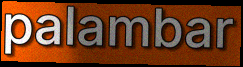
palambar